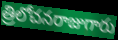
త్రిలోచనరాజుగారు